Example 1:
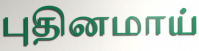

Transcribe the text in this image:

புதினமாய்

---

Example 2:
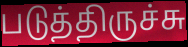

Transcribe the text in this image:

படுத்திருச்சு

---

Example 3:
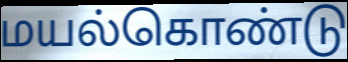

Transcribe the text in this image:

மயல்கொண்டு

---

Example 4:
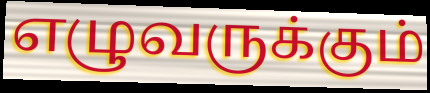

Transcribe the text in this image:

எழுவருக்கும்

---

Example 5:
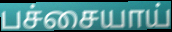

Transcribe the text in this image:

பச்சையாய்